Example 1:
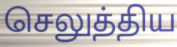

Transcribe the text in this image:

செலுத்திய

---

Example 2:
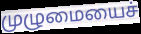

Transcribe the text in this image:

முழுமையைச்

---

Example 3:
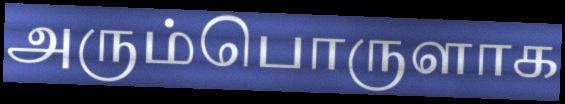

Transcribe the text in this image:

அரும்பொருளாக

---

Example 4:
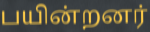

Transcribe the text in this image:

பயின்றனர்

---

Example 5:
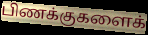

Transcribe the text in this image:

பிணக்குகளைக்